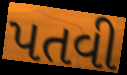
પતવી